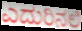
ಎದುರಿನಲಿ